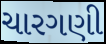
ચારગણી